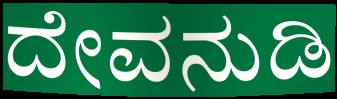
ದೇವನುಡಿ